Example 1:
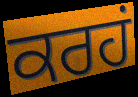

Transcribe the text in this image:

ਕਰਹਂ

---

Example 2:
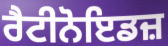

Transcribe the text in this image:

ਰੈਟੀਨੋਇਡਜ਼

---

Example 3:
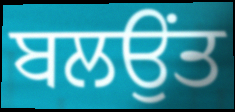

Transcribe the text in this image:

ਬਲਉਂਤ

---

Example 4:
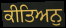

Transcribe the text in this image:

ਕੀਤਿਅਨੁ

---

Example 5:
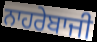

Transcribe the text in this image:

ਨਾਹਰੇਬਾਜੀ